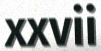
xxvii